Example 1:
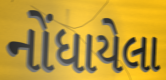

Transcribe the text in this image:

નોંધાયેલા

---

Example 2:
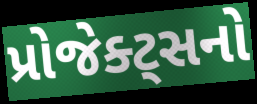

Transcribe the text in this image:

પ્રોજેક્ટ્સનો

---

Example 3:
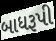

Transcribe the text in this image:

બાધરૂપી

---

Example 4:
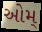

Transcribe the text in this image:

ઓમ્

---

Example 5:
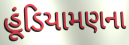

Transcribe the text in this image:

હૂંડિયામણના